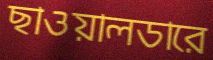
ছাওয়ালডারে